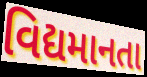
વિદ્યમાનતા